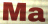
Ma